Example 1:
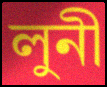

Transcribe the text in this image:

লুনী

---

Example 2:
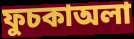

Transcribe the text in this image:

ফুচকাঅলা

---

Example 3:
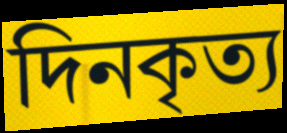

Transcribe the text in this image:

দিনকৃত্য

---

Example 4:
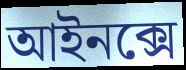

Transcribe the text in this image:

আইনক্সে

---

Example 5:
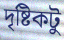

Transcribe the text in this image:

দৃষ্টিকটু